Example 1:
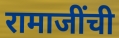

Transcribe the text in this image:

रामाजींची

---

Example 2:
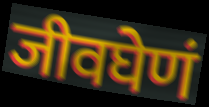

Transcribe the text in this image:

जीवघेणं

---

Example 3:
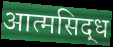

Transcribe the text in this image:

आत्मसिद्ध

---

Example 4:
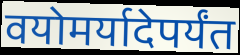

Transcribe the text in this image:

वयोमर्यादेपर्यंत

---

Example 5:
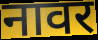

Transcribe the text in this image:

नावर